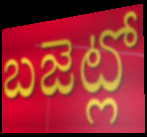
బజెట్లో